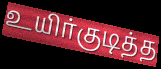
உயிர்குடித்த